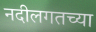
नदीलगतच्या